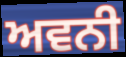
ਅਵਨੀ